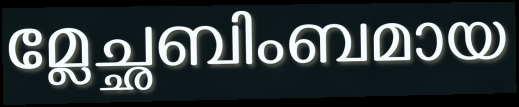
മ്ലേച്ഛബിംബമായ